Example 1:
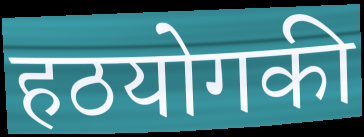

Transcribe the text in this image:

हठयोगकी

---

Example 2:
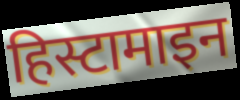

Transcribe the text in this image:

हिस्टामाइन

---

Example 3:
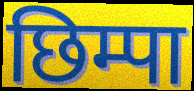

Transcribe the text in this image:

छिम्पा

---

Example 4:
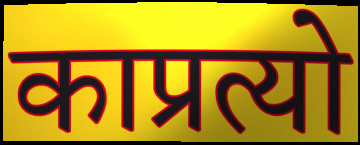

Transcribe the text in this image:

काप्रत्यो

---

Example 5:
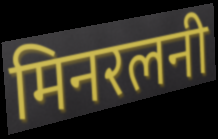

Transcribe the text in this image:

मिनरलनी